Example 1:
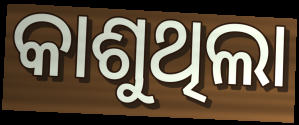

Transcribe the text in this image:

କାଶୁଥିଲା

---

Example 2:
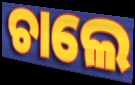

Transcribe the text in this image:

ଚାଲେ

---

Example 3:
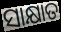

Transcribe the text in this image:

ସାକ୍ଷାତ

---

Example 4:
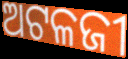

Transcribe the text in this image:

ଅଟଳଜୀ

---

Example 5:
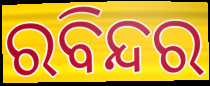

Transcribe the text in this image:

ରବିନ୍ଦର